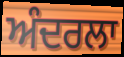
ਅੰਦਰਲਾ